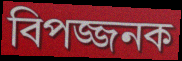
বিপজ্জনক